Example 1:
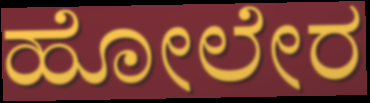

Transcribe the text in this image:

ಹೋಲೇರ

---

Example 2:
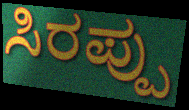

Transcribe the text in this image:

ಸಿರಪ್ಪು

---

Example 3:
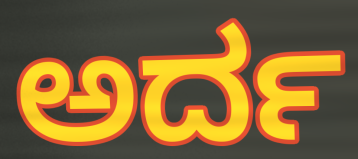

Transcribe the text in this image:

ಅರ್ದ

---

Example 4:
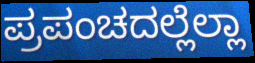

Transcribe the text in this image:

ಪ್ರಪಂಚದಲ್ಲೆಲ್ಲಾ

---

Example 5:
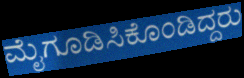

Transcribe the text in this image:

ಮೈಗೂಡಿಸಿಕೊಂಡಿದ್ದರು